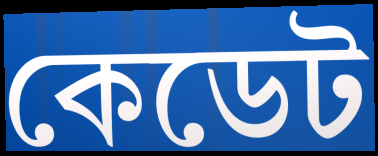
কেডেট